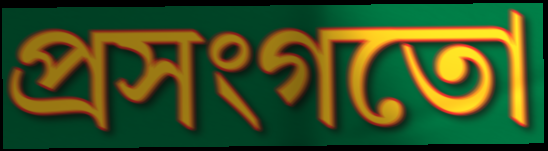
প্ৰসংগতো